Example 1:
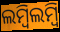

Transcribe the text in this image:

ଲମ୍ବିଲମ୍ବି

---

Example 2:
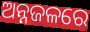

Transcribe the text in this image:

ଅନ୍ନଜଳରେ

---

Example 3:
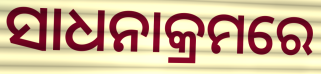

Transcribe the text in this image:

ସାଧନାକ୍ରମରେ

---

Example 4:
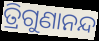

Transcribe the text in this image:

ତ୍ରିଗୁଣାନନ୍ଦ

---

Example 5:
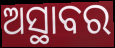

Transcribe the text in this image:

ଅସ୍ଥାବର